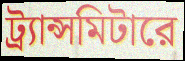
ট্র্যান্সমিটারে